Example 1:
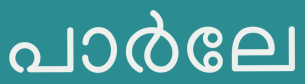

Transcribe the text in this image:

പാർലേ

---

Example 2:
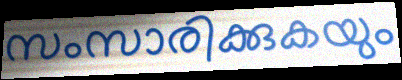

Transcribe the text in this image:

സംസാരിക്കുകയും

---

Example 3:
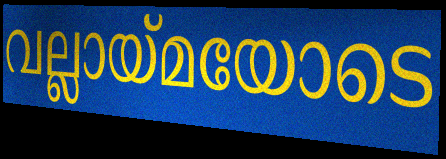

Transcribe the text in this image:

വല്ലായ്മയോടെ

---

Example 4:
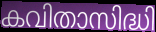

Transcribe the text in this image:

കവിതാസിദ്ധി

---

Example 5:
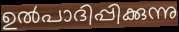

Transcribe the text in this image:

ഉൽപാദിപ്പിക്കുന്നു